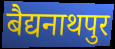
बैद्यनाथपुर